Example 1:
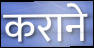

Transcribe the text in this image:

कराने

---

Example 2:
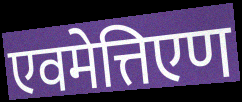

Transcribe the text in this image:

एवमेत्तिएण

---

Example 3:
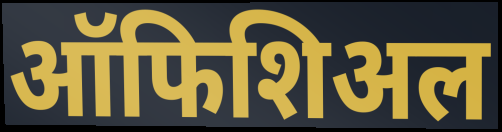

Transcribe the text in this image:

ऑफिशिअल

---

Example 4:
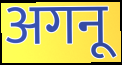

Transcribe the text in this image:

अगनू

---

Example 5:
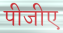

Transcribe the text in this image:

पीजीए